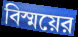
বিস্ময়ের